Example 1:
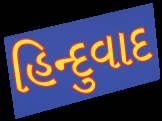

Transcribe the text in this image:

હિન્દુવાદ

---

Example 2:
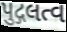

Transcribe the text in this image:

પુદ્ગલત્વ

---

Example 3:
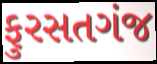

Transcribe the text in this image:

ફુરસતગંજ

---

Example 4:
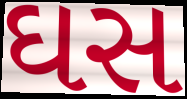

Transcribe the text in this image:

ઘસ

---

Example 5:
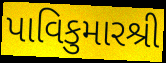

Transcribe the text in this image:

પાવિકુમારશ્રી